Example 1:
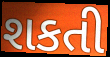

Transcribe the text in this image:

શકતી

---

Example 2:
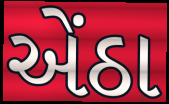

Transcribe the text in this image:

એંઠા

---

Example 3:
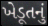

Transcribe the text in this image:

ખેડૂતનું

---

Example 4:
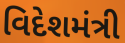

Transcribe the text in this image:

વિદેશમંત્રી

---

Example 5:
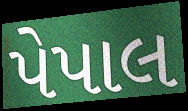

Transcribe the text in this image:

પેપાલ